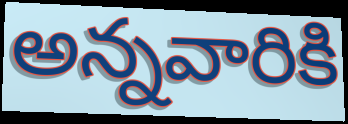
అన్నవారికి